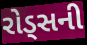
રોડ્સની